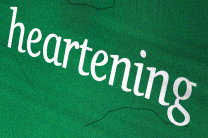
heartening